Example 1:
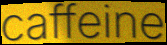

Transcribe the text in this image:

caffeine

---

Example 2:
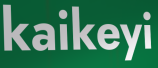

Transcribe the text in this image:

kaikeyi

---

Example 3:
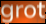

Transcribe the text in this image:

grot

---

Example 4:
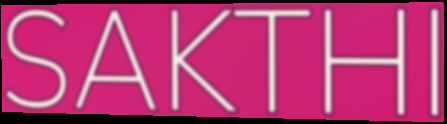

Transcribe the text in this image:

SAKTHI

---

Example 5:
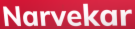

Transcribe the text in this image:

Narvekar